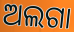
ଅଲଗା